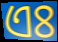
ଏଃ